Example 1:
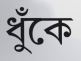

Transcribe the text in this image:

ধুঁকে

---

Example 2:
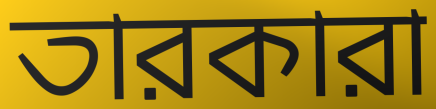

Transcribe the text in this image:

তারকারা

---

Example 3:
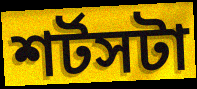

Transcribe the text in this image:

শর্টসটা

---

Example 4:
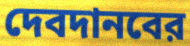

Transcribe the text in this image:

দেবদানবের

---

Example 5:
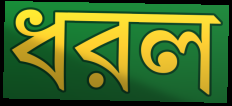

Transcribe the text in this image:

ধরল